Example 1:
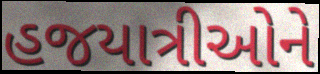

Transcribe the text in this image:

હજયાત્રીઓને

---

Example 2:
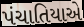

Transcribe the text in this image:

પંચાતિયાએ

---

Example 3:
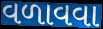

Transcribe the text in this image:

વળાવવા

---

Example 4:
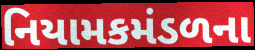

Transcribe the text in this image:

નિયામકમંડળના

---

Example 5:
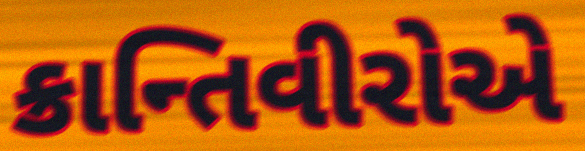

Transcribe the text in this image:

ક્રાન્તિવીરોએ